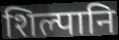
शिल्पानि